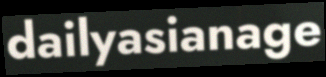
dailyasianage